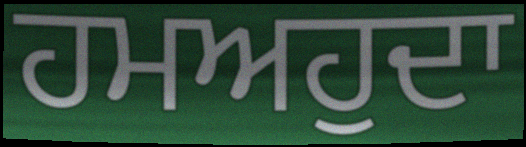
ਹਮਅਹੁਦਾ